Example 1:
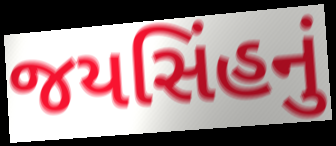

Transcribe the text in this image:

જયસિંહનું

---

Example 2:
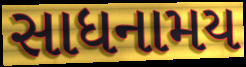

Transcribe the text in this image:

સાધનામય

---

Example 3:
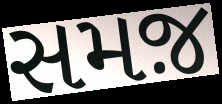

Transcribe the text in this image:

સમજ઼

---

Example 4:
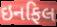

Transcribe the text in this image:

ઇનફિલ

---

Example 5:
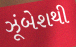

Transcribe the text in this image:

ઝૂંબેશથી